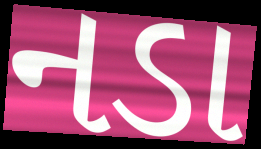
નડા